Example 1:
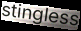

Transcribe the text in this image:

stingless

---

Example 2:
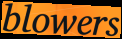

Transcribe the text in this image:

blowers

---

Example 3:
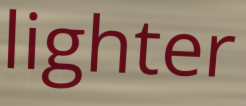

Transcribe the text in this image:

lighter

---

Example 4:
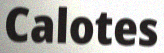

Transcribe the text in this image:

Calotes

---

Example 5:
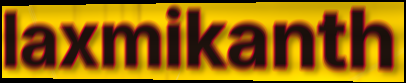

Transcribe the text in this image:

laxmikanth